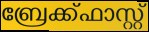
ബ്രേക്ക്ഫാസ്റ്റ്